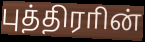
புத்திரரின்